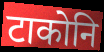
टाकोनि